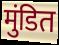
मुंडित